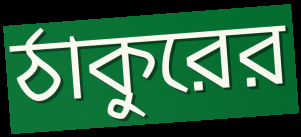
ঠাকুরের